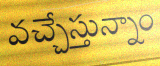
వచ్చేస్తున్నాం